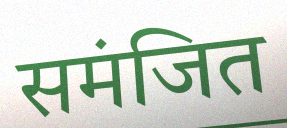
समंजित